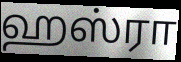
ஹஸ்ரா